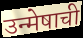
उन्मेषाची